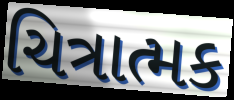
ચિત્રાત્મક